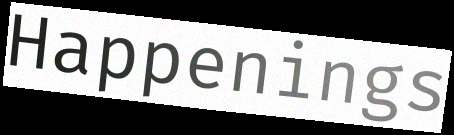
Happenings